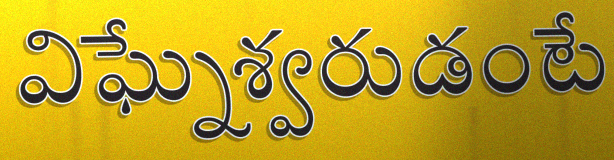
విఘ్నేశ్వరుడంటే